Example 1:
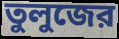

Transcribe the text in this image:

তুলুজের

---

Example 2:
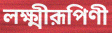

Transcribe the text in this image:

লক্ষ্মীরূপিণী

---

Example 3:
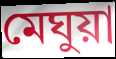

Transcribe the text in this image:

মেঘুয়া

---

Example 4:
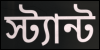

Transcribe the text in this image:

স্ট্যান্ট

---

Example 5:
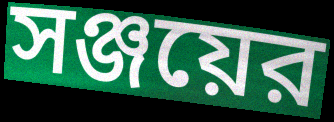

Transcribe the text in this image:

সঞ্জয়ের